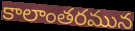
కాలాంతరమున